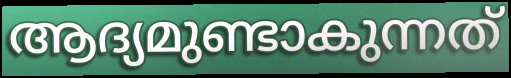
ആദ്യമുണ്ടാകുന്നത്